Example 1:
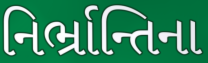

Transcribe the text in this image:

નિર્ભ્રાન્તિના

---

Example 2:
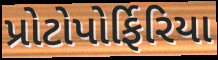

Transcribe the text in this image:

પ્રોટોપોર્ફિરિયા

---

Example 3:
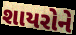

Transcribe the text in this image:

શાયરોને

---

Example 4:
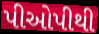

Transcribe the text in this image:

પીઓપીથી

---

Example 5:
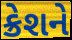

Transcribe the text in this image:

ક્રેશને